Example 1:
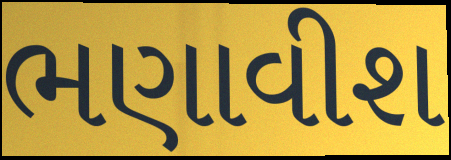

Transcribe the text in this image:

ભણાવીશ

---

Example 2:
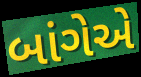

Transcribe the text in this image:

બાંગેએ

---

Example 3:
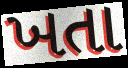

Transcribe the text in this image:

ખતા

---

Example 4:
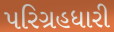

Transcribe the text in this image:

પરિગ્રહધારી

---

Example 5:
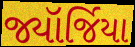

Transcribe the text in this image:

જ્યૉર્જિયા